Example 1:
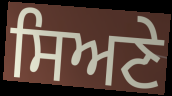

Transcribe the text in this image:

ਸਿਅਣੇ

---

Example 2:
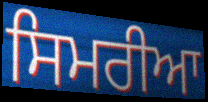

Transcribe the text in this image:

ਸਿਮਰੀਆ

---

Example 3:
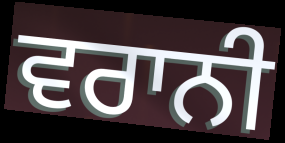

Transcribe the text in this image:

ਵਰਾਨੀ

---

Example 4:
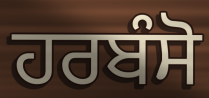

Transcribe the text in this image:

ਹਰਬੰਸੋ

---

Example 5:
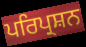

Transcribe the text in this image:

ਪਰਿਪ੍ਰਸ਼ਨ